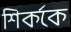
শির্ককে